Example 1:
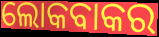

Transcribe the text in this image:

ଲୋକବାକର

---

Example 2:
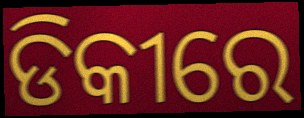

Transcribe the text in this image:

ଡିକୀରେ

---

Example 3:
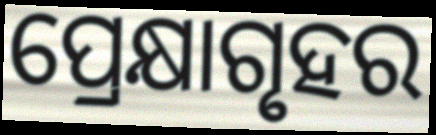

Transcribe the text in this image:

ପ୍ରେକ୍ଷାଗୃହର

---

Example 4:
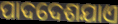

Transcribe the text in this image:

ପାଦଦେଶଯାଏ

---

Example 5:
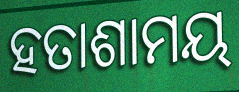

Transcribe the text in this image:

ହତାଶାମୟ